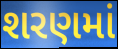
શરણમાં